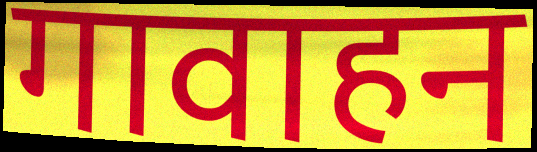
गावाहन